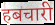
हबचारी